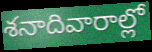
శనాదివారాల్లో